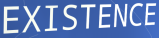
EXISTENCE